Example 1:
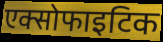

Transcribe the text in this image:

एक्सोफाइटिक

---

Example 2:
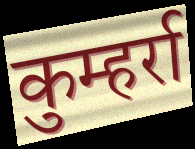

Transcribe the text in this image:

कुम्हर्रा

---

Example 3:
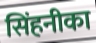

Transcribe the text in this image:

सिंहनीका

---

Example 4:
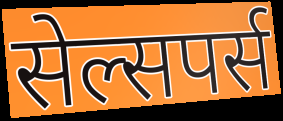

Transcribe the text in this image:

सेल्सपर्स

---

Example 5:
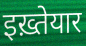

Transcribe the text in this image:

इख़्तेयार